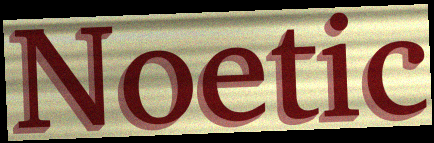
Noetic